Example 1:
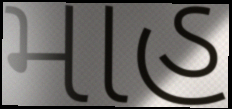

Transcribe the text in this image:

માહ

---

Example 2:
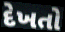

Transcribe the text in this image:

દેખતો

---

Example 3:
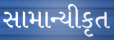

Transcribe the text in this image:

સામાન્યીકૃત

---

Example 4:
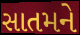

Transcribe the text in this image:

સાતમને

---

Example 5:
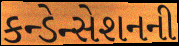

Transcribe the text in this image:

કન્ડેન્સેશનની